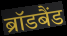
ब्रॉडबैंड